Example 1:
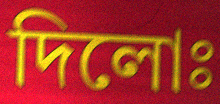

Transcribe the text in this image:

দিলোঃ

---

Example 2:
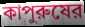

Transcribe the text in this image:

কাপুরুষের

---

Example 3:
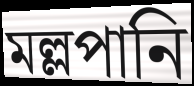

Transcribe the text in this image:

মল্লপানি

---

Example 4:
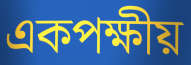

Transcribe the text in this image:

একপক্ষীয়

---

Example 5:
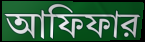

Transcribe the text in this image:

আফিফার